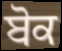
ਬੋਕ